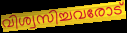
വിശ്വസിച്ചവരോട്